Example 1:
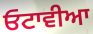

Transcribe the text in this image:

ਓਟਾਵੀਆ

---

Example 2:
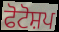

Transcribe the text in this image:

ਫੋਟੋਸ਼ਪ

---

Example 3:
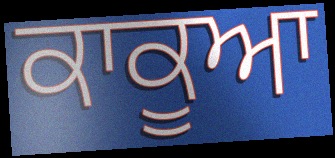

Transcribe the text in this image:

ਕਾਕੂਆ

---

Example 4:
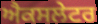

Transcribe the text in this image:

ਐਕਸਲੇਟਰ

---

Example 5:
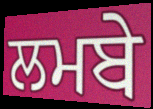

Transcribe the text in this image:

ਲਮਬੇ